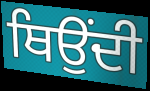
ਥਿਉਂਦੀ